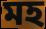
মহ